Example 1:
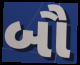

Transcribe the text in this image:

બૌ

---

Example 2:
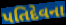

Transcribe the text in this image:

પતિદેવના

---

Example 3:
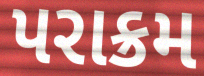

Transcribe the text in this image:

પરાક્રમ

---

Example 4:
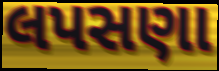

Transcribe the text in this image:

લપસણા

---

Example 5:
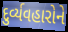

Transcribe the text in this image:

દુર્વ્યવહારોને